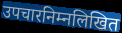
उपचारनिम्नलिखित